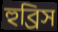
হুব্রিস